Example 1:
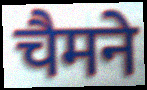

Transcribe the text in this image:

चैमने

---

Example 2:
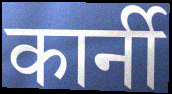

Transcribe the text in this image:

कार्नी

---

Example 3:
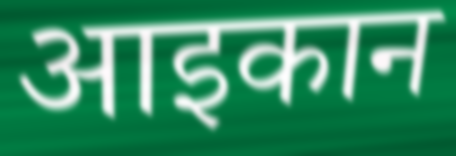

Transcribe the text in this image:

आइकान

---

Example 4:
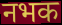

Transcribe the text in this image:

नभक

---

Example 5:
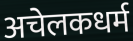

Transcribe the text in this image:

अचेलकधर्म